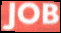
JOB